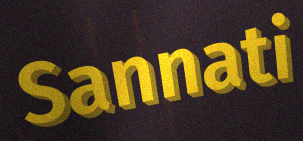
Sannati